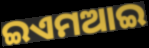
ଇଏମଆଇ